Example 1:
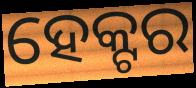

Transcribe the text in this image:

ହେକ୍ଟର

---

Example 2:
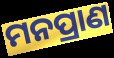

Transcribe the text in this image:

ମନପ୍ରାଣ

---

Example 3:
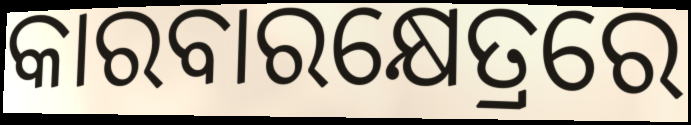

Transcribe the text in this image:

କାରବାରକ୍ଷେତ୍ରରେ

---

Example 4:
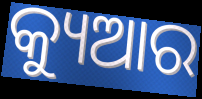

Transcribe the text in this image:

କ୍ୟୁଆର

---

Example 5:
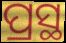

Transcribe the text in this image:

ପ୍ରସ୍ଥ